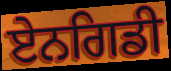
ਏਨਗਿਡੀ